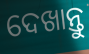
ଦେଖାନ୍ତୁ